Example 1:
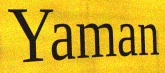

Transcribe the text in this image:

Yaman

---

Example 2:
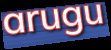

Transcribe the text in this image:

arugu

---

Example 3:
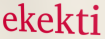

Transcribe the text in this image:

ekekti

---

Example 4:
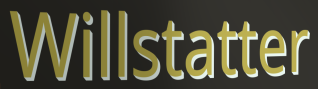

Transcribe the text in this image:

Willstatter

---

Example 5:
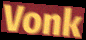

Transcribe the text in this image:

Vonk